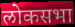
लोकसभा